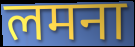
लमना